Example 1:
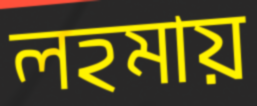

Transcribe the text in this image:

লহমায়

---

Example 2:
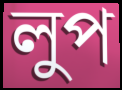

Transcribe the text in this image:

লুপ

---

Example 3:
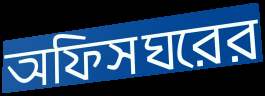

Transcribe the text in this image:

অফিসঘরের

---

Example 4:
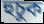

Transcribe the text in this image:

হুচুক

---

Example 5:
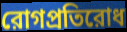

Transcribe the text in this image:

রোগপ্রতিরোধ